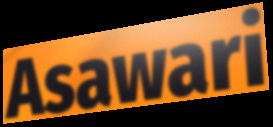
Asawari